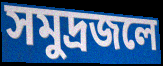
সমুদ্রজলে